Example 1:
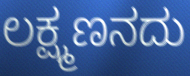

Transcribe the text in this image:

ಲಕ್ಷ್ಮಣನದು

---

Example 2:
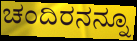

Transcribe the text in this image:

ಚಂದಿರನನ್ನೂ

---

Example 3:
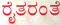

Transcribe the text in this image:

ರೈತರಂತೆ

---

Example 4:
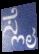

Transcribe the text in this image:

ಸ್ಲೈ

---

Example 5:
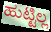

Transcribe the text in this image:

ಹುಟ್ಟಿಲ್ಲ